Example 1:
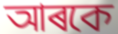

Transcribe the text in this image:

আৰকে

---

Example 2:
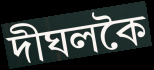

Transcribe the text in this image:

দীঘলকৈ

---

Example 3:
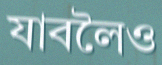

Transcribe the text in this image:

যাবলৈও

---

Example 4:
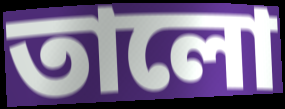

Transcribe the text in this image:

তালো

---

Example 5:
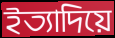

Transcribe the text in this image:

ইত্যাদিয়ে